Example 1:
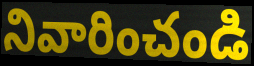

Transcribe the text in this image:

నివారించండి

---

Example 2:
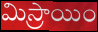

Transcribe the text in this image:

మిస్రాయిం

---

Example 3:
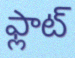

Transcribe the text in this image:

ఫ్లాట్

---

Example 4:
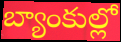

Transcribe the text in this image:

బ్యాంకుల్లో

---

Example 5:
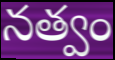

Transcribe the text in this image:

నత్వం